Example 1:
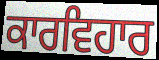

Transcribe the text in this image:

ਕਾਰਵਿਹਾਰ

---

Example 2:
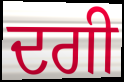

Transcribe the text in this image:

ਦਗੀ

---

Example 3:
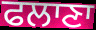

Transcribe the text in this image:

ਫਲਾਣਾ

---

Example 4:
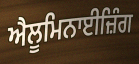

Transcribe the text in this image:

ਐਲੂਮਿਨਾਈਜ਼ਿੰਗ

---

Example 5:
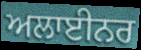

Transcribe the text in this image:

ਅਲਾਈਨਰ